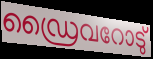
ഡ്രൈവറോടു്